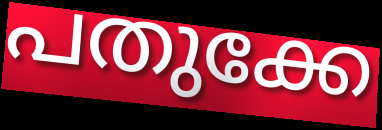
പതുക്കേ